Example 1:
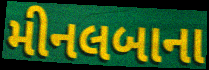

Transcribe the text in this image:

મીનલબાના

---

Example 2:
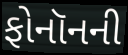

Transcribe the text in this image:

ફોનૉનની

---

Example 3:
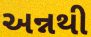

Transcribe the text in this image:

અન્નથી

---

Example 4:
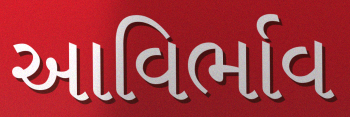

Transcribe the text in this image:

આવિર્ભાવ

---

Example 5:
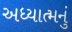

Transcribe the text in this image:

અધ્યાત્મનું